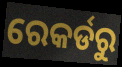
ରେକର୍ଡରୁ